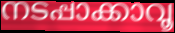
നടപ്പാക്കാവൂ